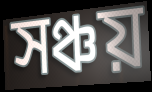
সঞ্চয়